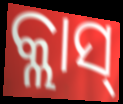
କ୍ଲାସ୍